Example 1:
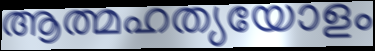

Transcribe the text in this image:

ആത്മഹത്യയോളം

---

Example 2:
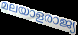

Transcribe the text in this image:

മലയാളരാജ്യ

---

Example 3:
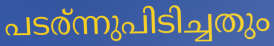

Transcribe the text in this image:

പടര്ന്നുപിടിച്ചതും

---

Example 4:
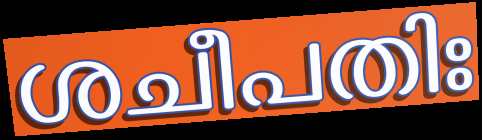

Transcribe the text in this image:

ശചീപതിഃ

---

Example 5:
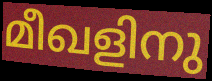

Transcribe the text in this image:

മീഖളിനു